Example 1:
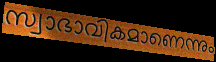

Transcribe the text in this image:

സ്വാഭാവികമാണെന്നും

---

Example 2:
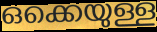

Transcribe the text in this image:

ഒക്കെയുള്ള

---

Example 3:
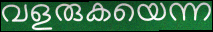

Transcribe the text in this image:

വളരുകയെന്ന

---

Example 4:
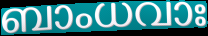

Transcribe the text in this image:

ബാംധവാഃ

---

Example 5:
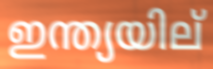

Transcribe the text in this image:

ഇന്ത്യയില്